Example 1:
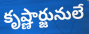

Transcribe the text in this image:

కృష్ణార్జునులే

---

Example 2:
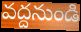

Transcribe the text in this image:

వద్దనుండి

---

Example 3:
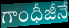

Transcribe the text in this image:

గాంధీజీనే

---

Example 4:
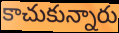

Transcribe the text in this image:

కాచుకున్నారు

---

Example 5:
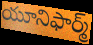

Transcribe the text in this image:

యూనిఫార్మ్